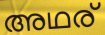
അഥര്